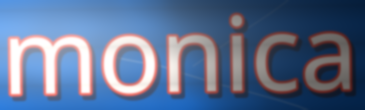
monica